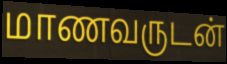
மாணவருடன்